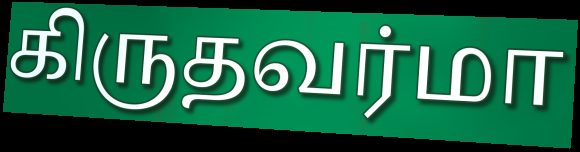
கிருதவர்மா